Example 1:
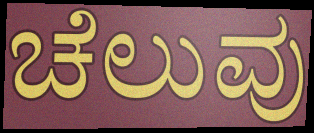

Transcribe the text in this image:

ಚೆಲುವು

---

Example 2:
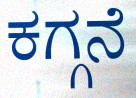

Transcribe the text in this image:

ಕಗ್ಗನೆ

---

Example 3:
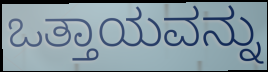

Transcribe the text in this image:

ಒತ್ತಾಯವನ್ನು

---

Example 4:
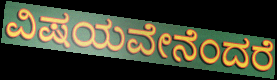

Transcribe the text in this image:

ವಿಷಯವೇನೆಂದರೆ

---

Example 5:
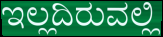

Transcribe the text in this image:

ಇಲ್ಲದಿರುವಲ್ಲಿ